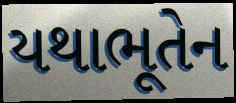
યથાભૂતેન